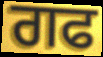
ਗਫ